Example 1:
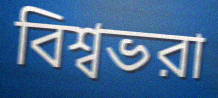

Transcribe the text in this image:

বিশ্বভরা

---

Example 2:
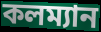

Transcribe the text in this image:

কলম্যান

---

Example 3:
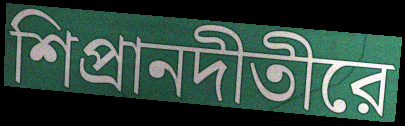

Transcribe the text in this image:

শিপ্রানদীতীরে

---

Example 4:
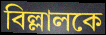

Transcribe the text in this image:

বিল্লালকে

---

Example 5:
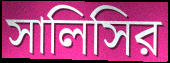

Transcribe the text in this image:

সালিসির